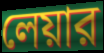
লেয়ার